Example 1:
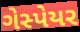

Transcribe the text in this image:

ગેસ્પેયર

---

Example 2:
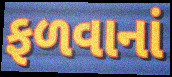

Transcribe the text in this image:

ફળવાનાં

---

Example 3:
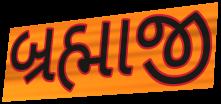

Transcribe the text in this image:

બ્રહ્માજી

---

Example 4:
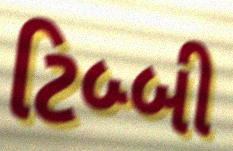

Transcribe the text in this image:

ટિબ્બી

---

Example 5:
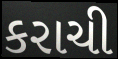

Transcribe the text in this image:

કરાચી